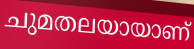
ചുമതലയായാണ്